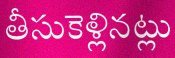
తీసుకెళ్లినట్లు